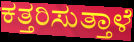
ಕತ್ತರಿಸುತ್ತಾಳೆ